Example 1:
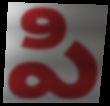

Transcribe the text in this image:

పి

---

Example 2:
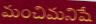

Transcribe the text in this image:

మంచిమనిషే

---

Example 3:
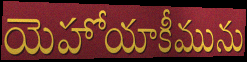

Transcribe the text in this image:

యెహోయాకీమును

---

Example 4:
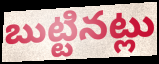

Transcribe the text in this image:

బుట్టినట్లు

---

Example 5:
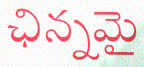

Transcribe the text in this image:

ఛిన్నమై